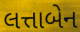
લત્તાબેન